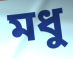
মধু